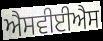
ਐਸਵੀਈਐਸ